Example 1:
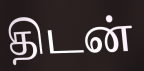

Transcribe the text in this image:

திடன்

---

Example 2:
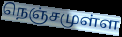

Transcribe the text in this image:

நெஞ்சமுள்ள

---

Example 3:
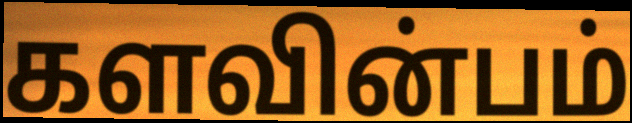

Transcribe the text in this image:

களவின்பம்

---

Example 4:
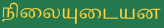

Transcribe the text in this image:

நிலையுடையன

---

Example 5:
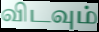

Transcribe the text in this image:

விடவும்